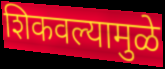
शिकवल्यामुळे